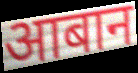
आबान